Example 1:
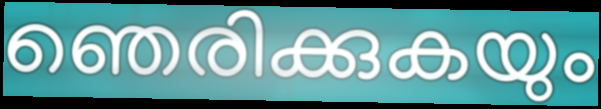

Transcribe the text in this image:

ഞെരിക്കുകയും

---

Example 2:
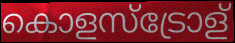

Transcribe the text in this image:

കൊളസ്ട്രോള്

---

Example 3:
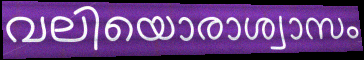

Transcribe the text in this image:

വലിയൊരാശ്വാസം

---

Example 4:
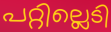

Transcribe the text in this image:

പറ്റില്ലെടി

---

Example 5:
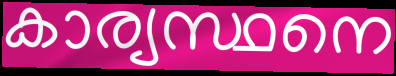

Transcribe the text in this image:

കാര്യസ്ഥനെ